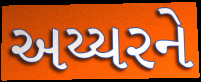
અય્યરને